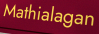
Mathialagan